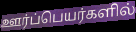
ஊர்ப்பெயர்களில்